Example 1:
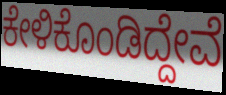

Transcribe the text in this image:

ಕೇಳಿಕೊಂಡಿದ್ದೇವೆ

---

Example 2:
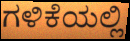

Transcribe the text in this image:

ಗಳಿಕೆಯಲ್ಲಿ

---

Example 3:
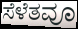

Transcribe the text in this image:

ಸೆಳೆತವೂ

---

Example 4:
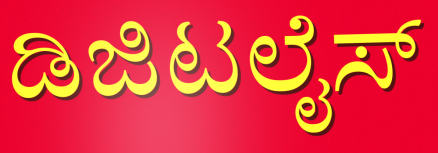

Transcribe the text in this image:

ಡಿಜಿಟಲೈಸ್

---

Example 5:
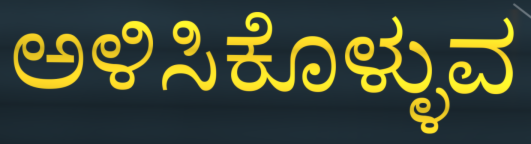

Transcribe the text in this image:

ಅಳಿಸಿಕೊಳ್ಳುವ